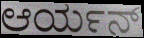
ಆರ್ಯನ್